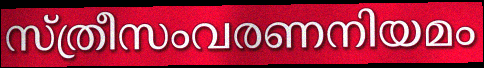
സ്ത്രീസംവരണനിയമം